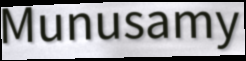
Munusamy